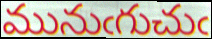
మునుఁగుచుఁ